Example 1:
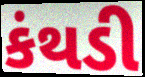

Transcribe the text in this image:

કંથડી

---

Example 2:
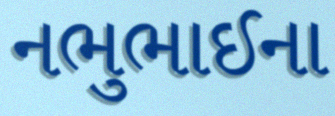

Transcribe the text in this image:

નભુભાઈના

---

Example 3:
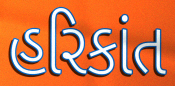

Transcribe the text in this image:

હરિકાંત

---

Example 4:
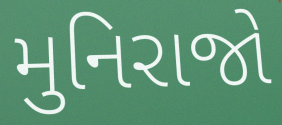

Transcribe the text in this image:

મુનિરાજો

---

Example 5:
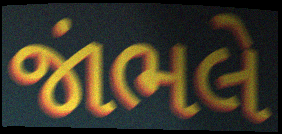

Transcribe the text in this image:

જાંભલે